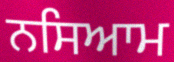
ਨਸਿਆਮ